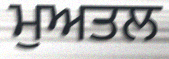
ਮੁਅਤਲ